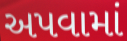
અપવામાં